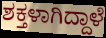
ಶಕ್ತಳಾಗಿದ್ದಾಳೆ